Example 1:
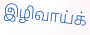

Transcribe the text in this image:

இழிவாய்க்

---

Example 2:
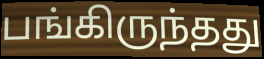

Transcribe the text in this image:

பங்கிருந்தது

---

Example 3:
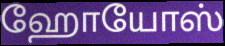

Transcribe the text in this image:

ஹோயோஸ்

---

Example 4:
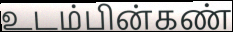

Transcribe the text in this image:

உடம்பின்கண்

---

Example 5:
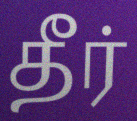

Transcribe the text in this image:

தீர்